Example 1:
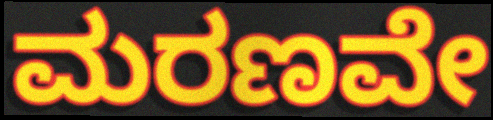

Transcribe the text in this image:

ಮರಣವೇ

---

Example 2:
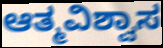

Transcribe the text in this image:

ಆತ್ಮವಿಶ್ವಾಸ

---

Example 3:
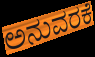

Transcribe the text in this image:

ಅನುವರಕೆ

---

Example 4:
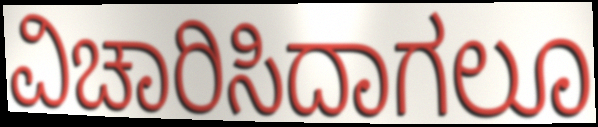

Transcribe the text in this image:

ವಿಚಾರಿಸಿದಾಗಲೂ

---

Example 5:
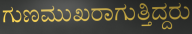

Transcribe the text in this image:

ಗುಣಮುಖರಾಗುತ್ತಿದ್ದರು